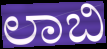
ಲಾಬಿ